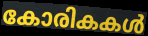
കോരികകൾ